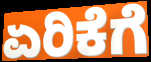
ಏರಿಕೆಗೆ